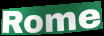
Rome